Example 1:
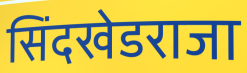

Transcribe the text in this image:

सिंदखेडराजा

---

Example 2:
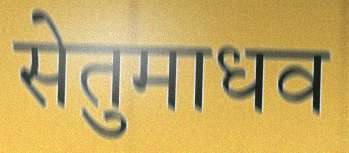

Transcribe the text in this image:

सेतुमाधव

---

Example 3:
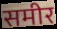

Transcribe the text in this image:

समीर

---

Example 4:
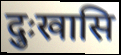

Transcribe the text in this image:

दुःखासि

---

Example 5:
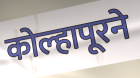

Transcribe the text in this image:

कोल्हापूरने